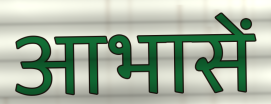
आभासें